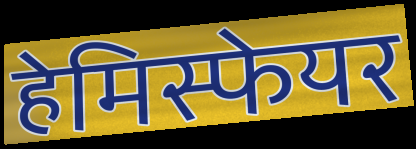
हेमिस्फेयर